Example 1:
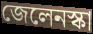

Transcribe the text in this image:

জেলেনস্কা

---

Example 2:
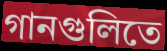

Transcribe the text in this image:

গানগুলিতে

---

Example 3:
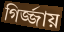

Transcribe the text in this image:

গির্জ্জায়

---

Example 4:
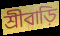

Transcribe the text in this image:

শ্রীবাড়ি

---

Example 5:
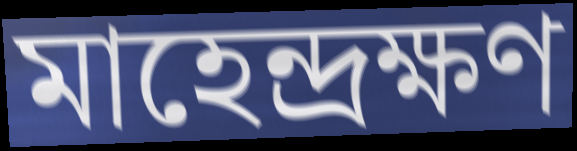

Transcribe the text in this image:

মাহেন্দ্রক্ষণ